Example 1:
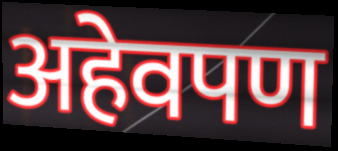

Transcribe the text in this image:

अहेवपण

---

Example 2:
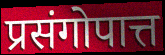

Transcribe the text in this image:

प्रसंगोपात्त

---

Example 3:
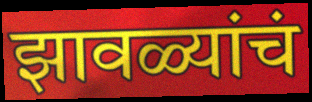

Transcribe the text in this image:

झावळ्यांचं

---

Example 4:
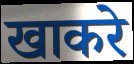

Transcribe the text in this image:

खाकरे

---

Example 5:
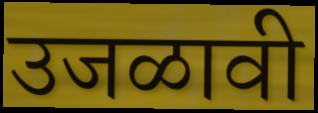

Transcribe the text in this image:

उजळावी